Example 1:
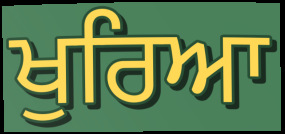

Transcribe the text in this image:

ਖੁਰਿਆ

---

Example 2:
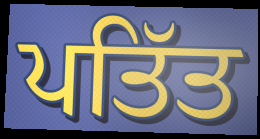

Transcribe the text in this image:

ਪਤਿੱਤ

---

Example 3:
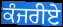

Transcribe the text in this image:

ਕੰਜਰੀਏ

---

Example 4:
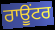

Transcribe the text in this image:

ਰਾਊਂਟਰ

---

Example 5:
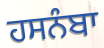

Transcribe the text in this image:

ਹਸਨੰਬਾ